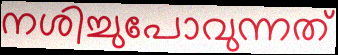
നശിച്ചുപോവുന്നത്